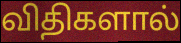
விதிகளால்